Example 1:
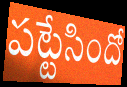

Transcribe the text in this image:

పట్టేసిందో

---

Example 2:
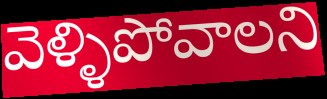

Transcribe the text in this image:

వెళ్ళిపోవాలని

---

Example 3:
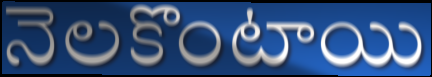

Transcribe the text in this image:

నెలకొంటాయి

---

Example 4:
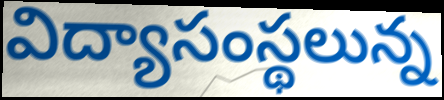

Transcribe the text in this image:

విద్యాసంస్థలున్న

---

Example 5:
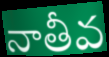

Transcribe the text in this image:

నాతీవ